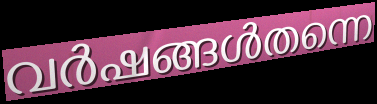
വർഷങ്ങൾതന്നെ